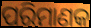
ପରିମାଣକ